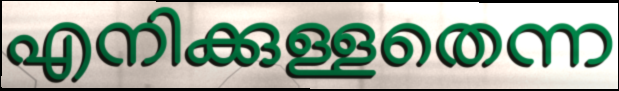
എനിക്കുള്ളതെന്ന